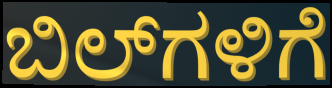
ಬಿಲ್‌ಗಳಿಗೆ